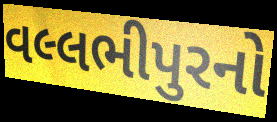
વલ્લભીપુરનો